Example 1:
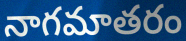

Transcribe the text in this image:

నాగమాతరం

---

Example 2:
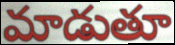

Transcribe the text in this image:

మాడుతూ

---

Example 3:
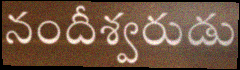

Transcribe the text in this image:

నందీశ్వరుడు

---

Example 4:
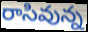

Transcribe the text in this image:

రాసివున్న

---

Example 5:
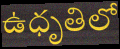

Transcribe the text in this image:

ఉధృతిలో